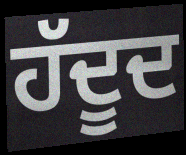
ਹੱਦੂਦ